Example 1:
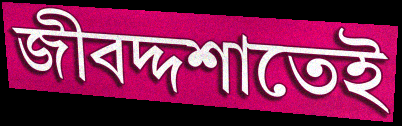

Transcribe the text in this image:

জীবদ্দশাতেই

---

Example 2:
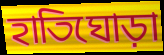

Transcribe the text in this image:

হাতিঘোড়া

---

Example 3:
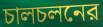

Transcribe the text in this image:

চালচলনের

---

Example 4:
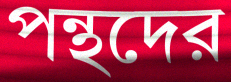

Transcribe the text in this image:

পন্থদের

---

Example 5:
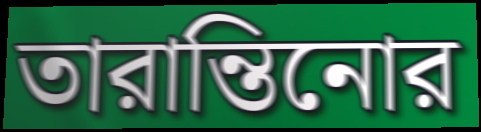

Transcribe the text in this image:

তারান্তিনোর